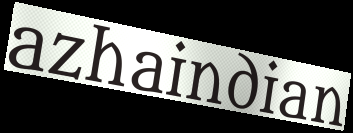
azhaindian